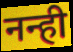
नन्ही